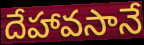
దేహావసానే